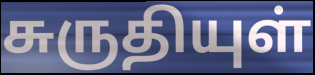
சுருதியுள்